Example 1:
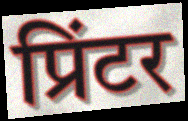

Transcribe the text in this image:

प्रिंटर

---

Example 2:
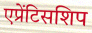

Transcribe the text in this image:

एप्रेंटिसशिप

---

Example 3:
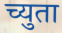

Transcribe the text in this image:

च्युता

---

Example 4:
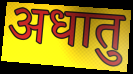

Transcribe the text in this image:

अधातु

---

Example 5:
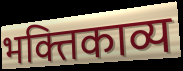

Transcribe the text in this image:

भक्तिकाव्य